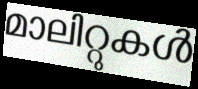
മാലിറ്റുകൾ